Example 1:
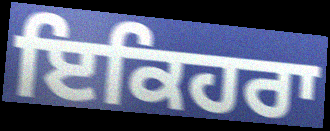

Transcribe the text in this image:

ਇਕਿਹਰਾ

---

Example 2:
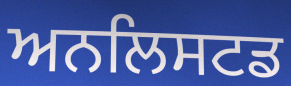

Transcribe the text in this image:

ਅਨਲਿਸਟਡ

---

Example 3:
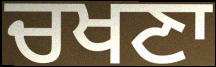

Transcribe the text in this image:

ਚਖਣਾ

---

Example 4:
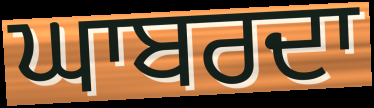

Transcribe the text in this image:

ਘਾਬਰਦਾ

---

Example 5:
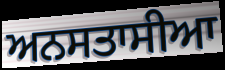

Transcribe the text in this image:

ਅਨਸਤਾਸੀਆ